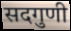
सदगुणी